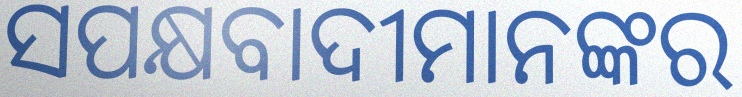
ସପକ୍ଷବାଦୀମାନଙ୍କର